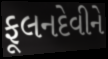
ફૂલનદેવીને